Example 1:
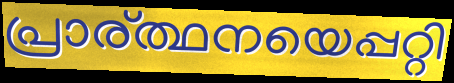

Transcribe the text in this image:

പ്രാര്ത്ഥനയെപ്പറ്റി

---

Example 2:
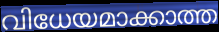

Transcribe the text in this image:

വിധേയമാക്കാത്ത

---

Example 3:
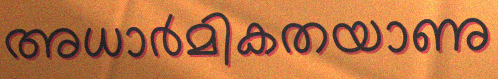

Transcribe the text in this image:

അധാർമികതയാണു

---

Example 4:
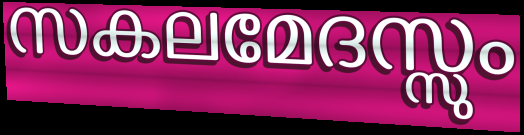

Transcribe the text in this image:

സകലമേദസ്സും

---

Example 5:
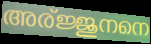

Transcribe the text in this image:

അര്ജ്ജുനനെ